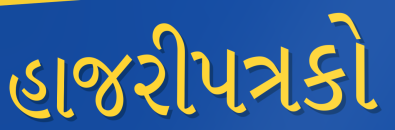
હાજરીપત્રકો